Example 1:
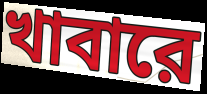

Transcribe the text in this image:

খাবারে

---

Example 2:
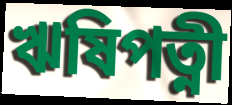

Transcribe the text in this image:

ঋষিপত্নী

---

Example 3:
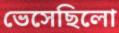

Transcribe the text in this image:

ভেসেছিলো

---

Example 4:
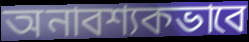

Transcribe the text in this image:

অনাবশ্যকভাবে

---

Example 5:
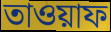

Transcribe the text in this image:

তাওয়াফ